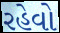
રહેવો